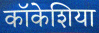
कॉकेशिया